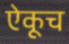
ऐकूच